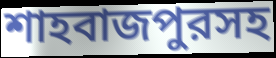
শাহবাজপুরসহ